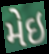
મેઇ